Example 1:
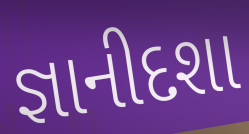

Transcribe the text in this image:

જ્ઞાનીદશા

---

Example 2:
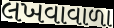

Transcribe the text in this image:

લખવાવાળા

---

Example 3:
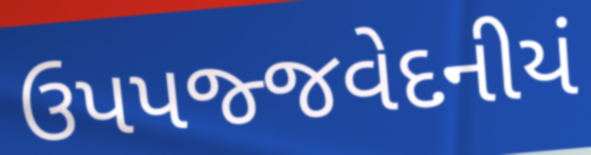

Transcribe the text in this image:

ઉપપજ્જવેદનીયં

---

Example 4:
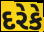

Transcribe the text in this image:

દરેકે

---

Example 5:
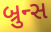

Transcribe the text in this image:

બ્રુન્સ